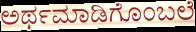
ಅರ್ಥಮಾಡಿಗೊಂಬಲೆ